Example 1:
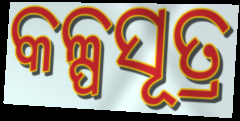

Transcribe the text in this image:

କଳ୍ପସୂତ୍ର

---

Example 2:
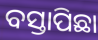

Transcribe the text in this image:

ବସ୍ତାପିଛା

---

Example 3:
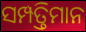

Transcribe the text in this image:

ସମ୍ପତ୍ତିମାନ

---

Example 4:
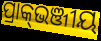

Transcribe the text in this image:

ପ୍ରାକ୍‌ଭଞ୍ଜୀୟ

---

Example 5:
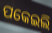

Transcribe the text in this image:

ପକେଇଲି